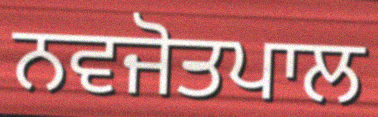
ਨਵਜੋਤਪਾਲ